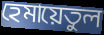
হেমায়েতুল